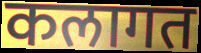
कलागत